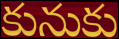
కునుకు